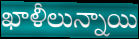
ఖాళీలున్నాయి